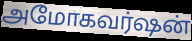
அமோகவர்ஷன்